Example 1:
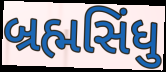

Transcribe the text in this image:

બ્રહ્મસિંધુ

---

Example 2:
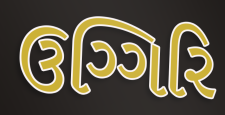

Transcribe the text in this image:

ઉગ્ગિરિ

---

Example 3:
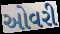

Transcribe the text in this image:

ઓવરી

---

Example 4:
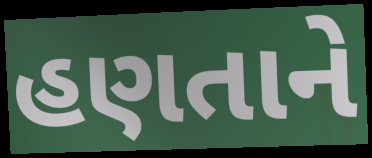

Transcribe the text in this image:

હણતાને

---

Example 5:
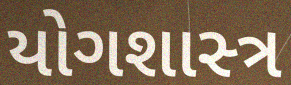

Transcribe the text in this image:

યોગશાસ્‍ત્ર